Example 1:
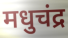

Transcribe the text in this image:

मधुचंद्र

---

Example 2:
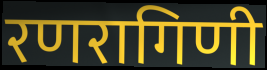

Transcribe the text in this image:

रणरागिणी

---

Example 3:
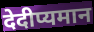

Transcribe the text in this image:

देदीप्यमान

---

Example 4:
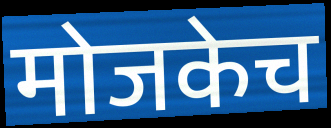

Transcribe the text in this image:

मोजकेच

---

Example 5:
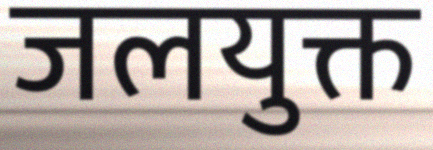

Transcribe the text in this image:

जलयुक्त